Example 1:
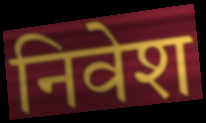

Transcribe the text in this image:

निवेश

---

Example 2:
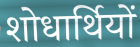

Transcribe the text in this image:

शोधार्थियों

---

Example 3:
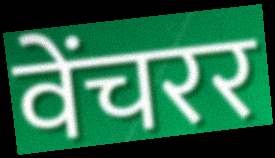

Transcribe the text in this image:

वेंचरर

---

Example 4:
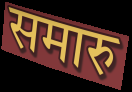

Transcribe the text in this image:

समारु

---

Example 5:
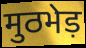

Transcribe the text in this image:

मुठभेड़